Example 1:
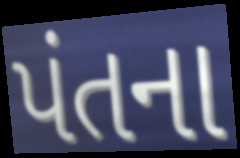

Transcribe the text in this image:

પંતના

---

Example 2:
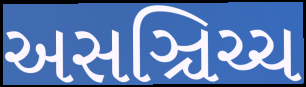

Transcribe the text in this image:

અસઞ્ચિચ્ચ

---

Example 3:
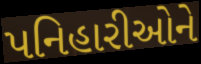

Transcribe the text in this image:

પનિહારીઓને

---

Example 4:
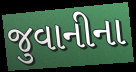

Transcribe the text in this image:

જુવાનીના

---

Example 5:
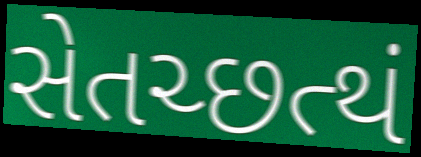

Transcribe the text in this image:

સેતચ્છત્થં